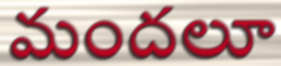
మందలూ